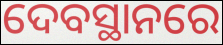
ଦେବସ୍ଥାନରେ